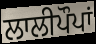
ਲਾਲੀਪੌਪਾਂ